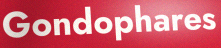
Gondophares